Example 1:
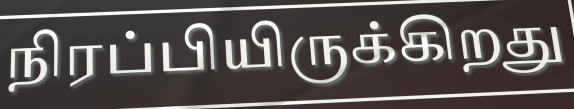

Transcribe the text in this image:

நிரப்பியிருக்கிறது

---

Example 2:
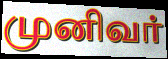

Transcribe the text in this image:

முனிவர்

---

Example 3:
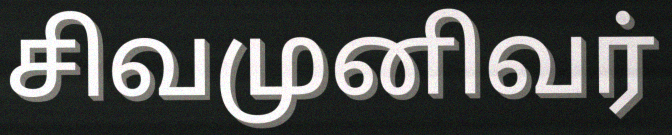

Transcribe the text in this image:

சிவமுனிவர்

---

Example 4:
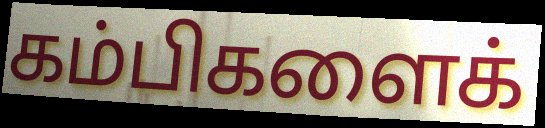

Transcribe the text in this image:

கம்பிகளைக்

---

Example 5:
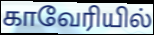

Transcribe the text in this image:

காவேரியில்